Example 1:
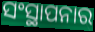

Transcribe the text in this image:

ସଂସ୍ଥାପନାର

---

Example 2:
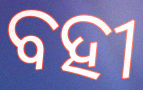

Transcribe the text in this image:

ବହୀ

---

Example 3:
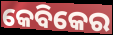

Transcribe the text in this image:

କେବିକେର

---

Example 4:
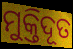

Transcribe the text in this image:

ମୁକ୍ତିଦୂତ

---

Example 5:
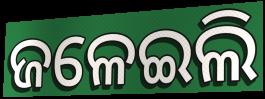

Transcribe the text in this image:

ଜଳେଇଲି